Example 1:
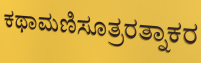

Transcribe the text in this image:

ಕಥಾಮಣಿಸೂತ್ರರತ್ನಾಕರ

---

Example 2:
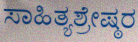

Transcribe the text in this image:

ಸಾಹಿತ್ಯಶ್ರೇಷ್ಠರ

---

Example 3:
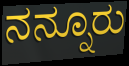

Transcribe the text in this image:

ನನ್ನೂರು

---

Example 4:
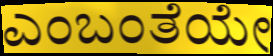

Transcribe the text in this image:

ಎಂಬಂತೆಯೇ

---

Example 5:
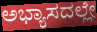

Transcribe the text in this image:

ಅಭ್ಯಾಸದಲ್ಲೇ